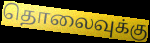
தொலைவுக்கு